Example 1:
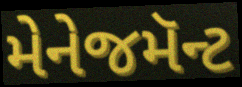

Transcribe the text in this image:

મેનેજમૅન્ટ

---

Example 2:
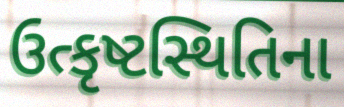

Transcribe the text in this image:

ઉત્કૃષ્ટસ્થિતિના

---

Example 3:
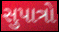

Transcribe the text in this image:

સુપાત્રો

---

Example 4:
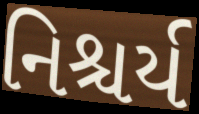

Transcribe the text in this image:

નિશ્ચર્ય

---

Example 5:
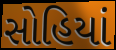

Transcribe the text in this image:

સોહિયાં